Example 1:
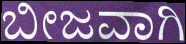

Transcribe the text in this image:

ಬೀಜವಾಗಿ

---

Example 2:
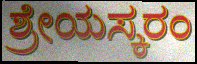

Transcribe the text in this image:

ಶ್ರೇಯಸ್ಕರಂ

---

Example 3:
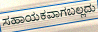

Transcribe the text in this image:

ಸಹಾಯಕವಾಗಬಲ್ಲದು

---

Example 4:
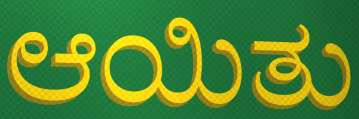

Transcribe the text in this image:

ಆಯಿತು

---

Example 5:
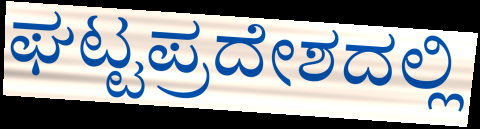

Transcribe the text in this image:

ಘಟ್ಟಪ್ರದೇಶದಲ್ಲಿ